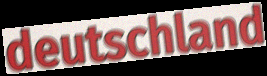
deutschland